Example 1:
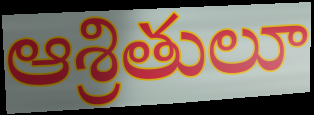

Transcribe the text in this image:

ఆశ్రితులూ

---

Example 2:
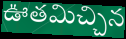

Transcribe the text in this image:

ఊతమిచ్చిన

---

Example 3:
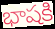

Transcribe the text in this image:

భాషకి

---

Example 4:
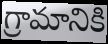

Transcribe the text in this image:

గ్రామానికి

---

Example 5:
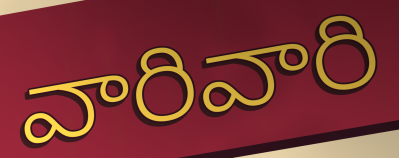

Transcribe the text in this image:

వారివారి